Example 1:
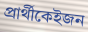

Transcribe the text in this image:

প্ৰাৰ্থীকেইজন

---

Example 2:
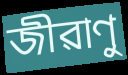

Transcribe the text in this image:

জীৱাণু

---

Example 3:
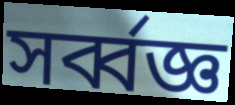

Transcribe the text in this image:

সৰ্ব্বজ্ঞ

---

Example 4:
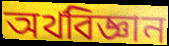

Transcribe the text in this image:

অৰ্থবিজ্ঞান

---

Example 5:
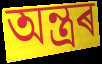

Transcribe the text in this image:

অন্ত্ৰৰ